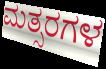
ಮತ್ಸರಗಳ